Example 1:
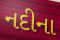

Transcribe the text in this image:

નદીના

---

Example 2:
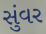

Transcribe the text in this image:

સુંવર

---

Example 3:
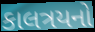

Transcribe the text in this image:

કાલત્રયનો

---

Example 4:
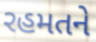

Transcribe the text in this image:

રહમતને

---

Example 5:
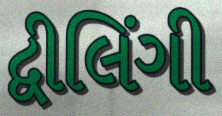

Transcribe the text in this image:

દ્વીલિંગી